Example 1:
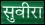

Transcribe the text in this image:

सुवीरा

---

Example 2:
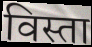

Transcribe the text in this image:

विस्ता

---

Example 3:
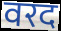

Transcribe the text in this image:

वरद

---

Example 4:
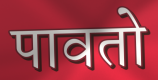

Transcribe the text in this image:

पावतो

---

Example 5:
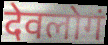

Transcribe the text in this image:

देवलोगं